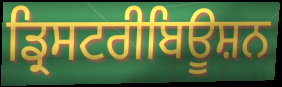
ਡ੍ਰਿਸਟਰੀਬਿਊਸ਼ਨ